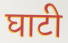
घाटी